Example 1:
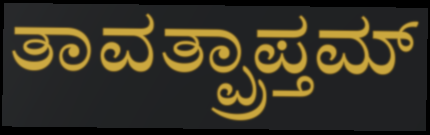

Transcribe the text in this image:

ತಾವತ್ಪ್ರಾಪ್ತಮ್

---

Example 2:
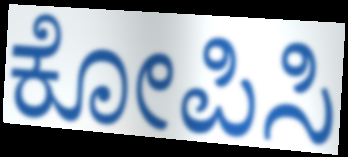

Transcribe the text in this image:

ಕೋಪಿಸಿ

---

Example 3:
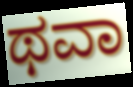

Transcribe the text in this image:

ಥವಾ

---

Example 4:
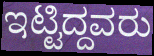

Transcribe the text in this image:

ಇಟ್ಟಿದ್ದವರು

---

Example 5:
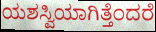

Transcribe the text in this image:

ಯಶಸ್ವಿಯಾಗಿತ್ತೆಂದರೆ